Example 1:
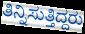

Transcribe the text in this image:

ತಿನ್ನಿಸುತ್ತಿದ್ದರು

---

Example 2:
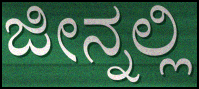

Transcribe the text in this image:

ಜೀನ್ನಲ್ಲಿ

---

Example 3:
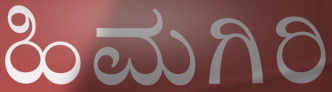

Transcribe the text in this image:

ಹಿಮಗಿರಿ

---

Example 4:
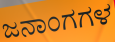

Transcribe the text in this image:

ಜನಾಂಗಗಳ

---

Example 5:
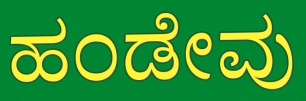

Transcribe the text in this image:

ಹಂಡೇವು